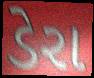
ડેરા